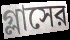
গ্লাসের